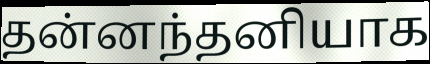
தன்னந்தனியாக